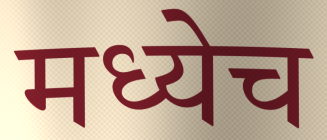
मध्येच